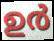
ഉർ